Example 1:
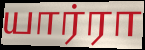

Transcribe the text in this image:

யார்ரா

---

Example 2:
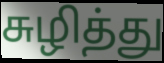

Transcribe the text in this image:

சுழித்து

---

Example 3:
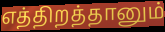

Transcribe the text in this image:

எத்திறத்தானும்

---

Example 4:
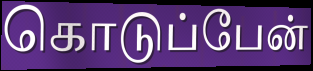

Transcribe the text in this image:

கொடுப்பேன்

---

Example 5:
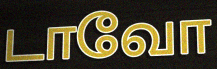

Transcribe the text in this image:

டாவோ